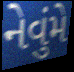
નેવુંમે